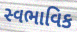
સ્વભાવિક